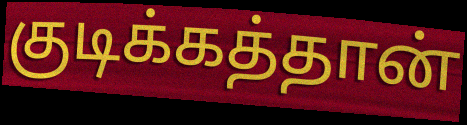
குடிக்கத்தான்